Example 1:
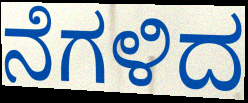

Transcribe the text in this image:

ನೆಗಳಿದ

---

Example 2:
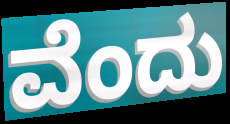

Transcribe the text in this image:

ವೆಂದು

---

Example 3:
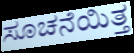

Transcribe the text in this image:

ಸೂಚನೆಯಿತ್ತ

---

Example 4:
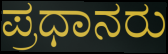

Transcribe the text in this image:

ಪ್ರಧಾನರು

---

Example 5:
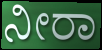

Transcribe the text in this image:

ನೀರಾ